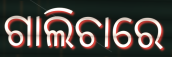
ଗାଲିଚାରେ